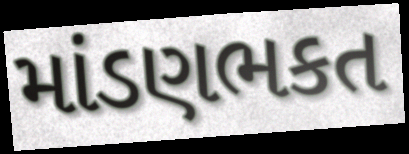
માંડણભકત